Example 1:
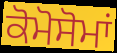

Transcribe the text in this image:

ਕੋਮੋਸੋਮਾਂ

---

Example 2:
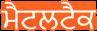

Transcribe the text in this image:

ਮੈਟਲਟੈਕ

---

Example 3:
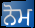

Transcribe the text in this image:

ਨੋਮ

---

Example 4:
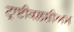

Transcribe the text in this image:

ਟ੍ਰਾਈਕਲਸ਼ੀਅਮ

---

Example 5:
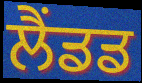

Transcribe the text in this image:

ਲੈਂਡਡ